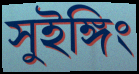
সুইঙ্গিং